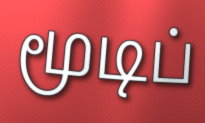
மூடிப்